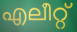
എലീറ്റ്